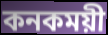
কনকময়ী